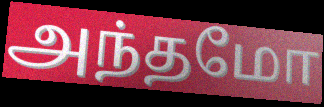
அந்தமோ